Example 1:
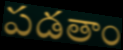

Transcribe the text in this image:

పడతాం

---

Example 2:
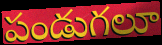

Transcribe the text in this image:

పండుగలూ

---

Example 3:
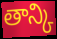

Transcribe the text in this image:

తాన్కి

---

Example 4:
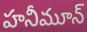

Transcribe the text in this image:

హనీమూన్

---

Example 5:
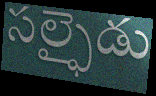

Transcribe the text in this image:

సల్ఫైడు